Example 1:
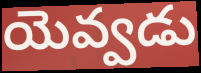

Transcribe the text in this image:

యెవ్వడు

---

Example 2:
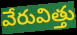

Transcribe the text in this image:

వేరువిత్తు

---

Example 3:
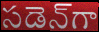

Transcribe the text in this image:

సడెన్‌గా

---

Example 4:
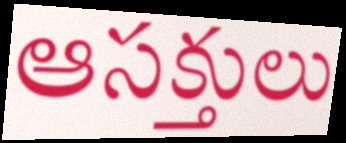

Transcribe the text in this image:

ఆసక్తులు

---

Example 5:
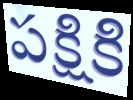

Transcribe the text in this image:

పక్షికి